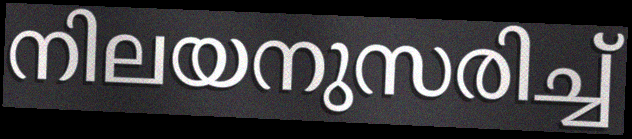
നിലയനുസരിച്ച്